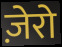
ज़ेरो